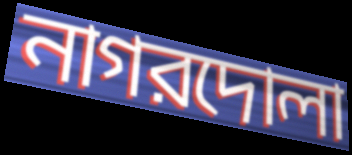
নাগরদোলা